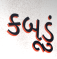
કબૂડું